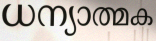
ധന്യാത്മക